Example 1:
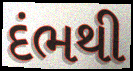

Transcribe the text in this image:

દંભથી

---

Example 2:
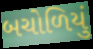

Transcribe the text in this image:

બચોળિયું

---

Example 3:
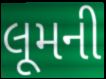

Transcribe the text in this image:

લૂમની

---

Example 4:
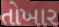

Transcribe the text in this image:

તોખાર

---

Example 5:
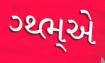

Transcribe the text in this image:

ગ્થ્ભ્એ